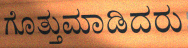
ಗೊತ್ತುಮಾಡಿದರು